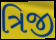
ત્રિજી